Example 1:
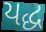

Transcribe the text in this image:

યદ્ધ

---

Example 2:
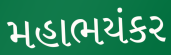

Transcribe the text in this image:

મહાભયંકર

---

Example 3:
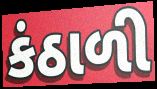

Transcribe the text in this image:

કંઠાળી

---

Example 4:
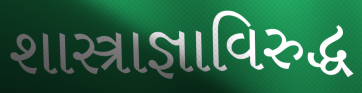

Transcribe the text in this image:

શાસ્ત્રાજ્ઞાવિરુદ્ધ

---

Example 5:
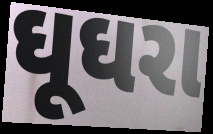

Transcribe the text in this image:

ઘૂઘરા